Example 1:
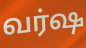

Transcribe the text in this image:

வர்ஷ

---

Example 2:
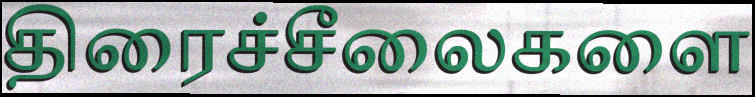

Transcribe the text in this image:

திரைச்சீலைகளை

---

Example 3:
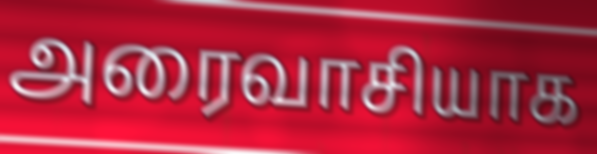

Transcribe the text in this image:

அரைவாசியாக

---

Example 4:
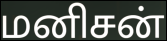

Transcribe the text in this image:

மனிசன்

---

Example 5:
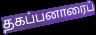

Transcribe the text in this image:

தகப்பனாரைப்